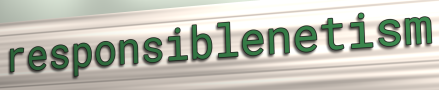
responsiblenetism